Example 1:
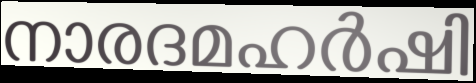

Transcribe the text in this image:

നാരദമഹർഷി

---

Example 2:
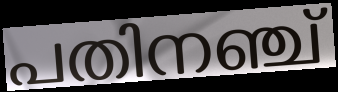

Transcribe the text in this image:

പതിനഞ്ച്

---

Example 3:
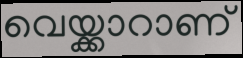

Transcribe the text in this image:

വെയ്ക്കാറാണ്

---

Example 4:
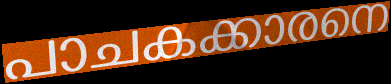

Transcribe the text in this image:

പാചകക്കാരനെ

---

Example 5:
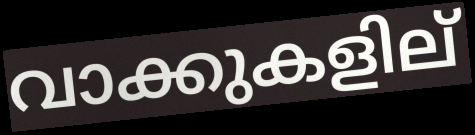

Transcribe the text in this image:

വാക്കുകളില്